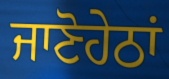
ਜਾਣੋਹੇਠਾਂ